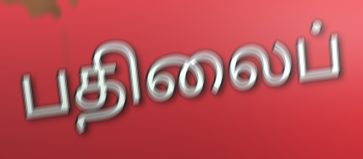
பதிலைப்